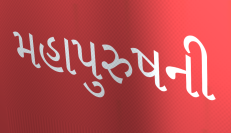
મહાપુરુષની